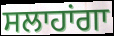
ਸਲਾਹਾਂਗਾ